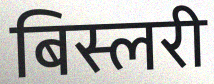
बिस्लरी